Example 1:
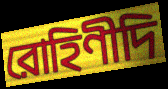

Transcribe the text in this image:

রোহিণীদি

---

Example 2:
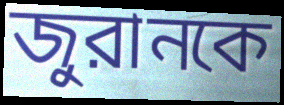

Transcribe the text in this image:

জুরানকে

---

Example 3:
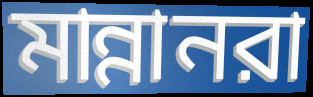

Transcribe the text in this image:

মান্নানরা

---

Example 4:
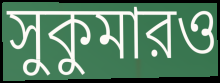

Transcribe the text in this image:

সুকুমারও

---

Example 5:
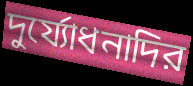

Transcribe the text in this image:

দুর্য্যোধনাদির